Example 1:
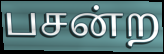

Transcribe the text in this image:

பசன்ற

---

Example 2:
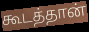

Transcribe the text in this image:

கூடத்தான்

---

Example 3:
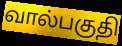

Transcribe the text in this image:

வால்பகுதி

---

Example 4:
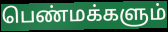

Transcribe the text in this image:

பெண்மக்களும்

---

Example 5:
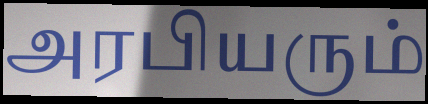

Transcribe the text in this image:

அரபியரும்